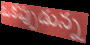
ఒకప్పుడున్న